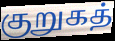
குறுகத்